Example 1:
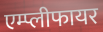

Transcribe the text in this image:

एम्प्लीफायर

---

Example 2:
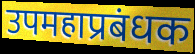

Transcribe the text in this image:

उपमहाप्रबंधक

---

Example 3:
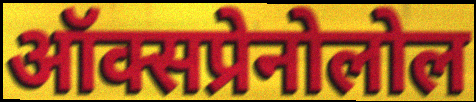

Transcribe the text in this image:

ऑक्सप्रेनोलोल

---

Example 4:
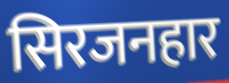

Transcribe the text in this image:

सिरजनहार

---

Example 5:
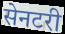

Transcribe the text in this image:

सेनटरी